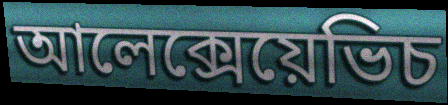
আলেক্সেয়েভিচ